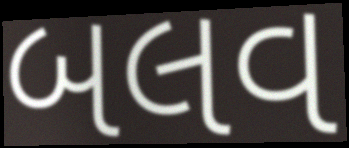
બલવ